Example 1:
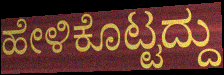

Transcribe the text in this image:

ಹೇಳಿಕೊಟ್ಟದ್ದು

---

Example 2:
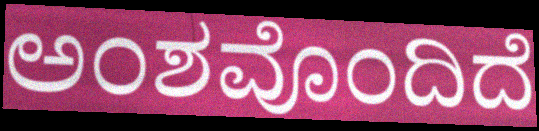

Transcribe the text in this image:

ಅಂಶವೊಂದಿದೆ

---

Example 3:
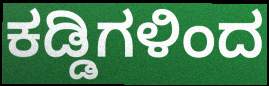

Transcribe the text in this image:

ಕಡ್ಡಿಗಳಿಂದ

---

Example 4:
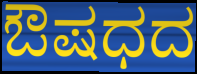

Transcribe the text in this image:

ಔಷಧದ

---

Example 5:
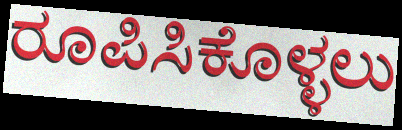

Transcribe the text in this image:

ರೂಪಿಸಿಕೊಳ್ಳಲು